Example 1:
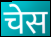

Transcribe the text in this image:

चेस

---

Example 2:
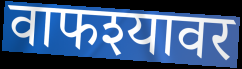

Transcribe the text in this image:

वाफश्यावर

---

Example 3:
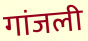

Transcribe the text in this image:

गांजली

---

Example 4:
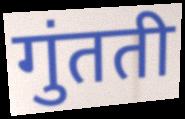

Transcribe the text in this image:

गुंतती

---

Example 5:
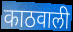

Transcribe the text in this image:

काठवाली